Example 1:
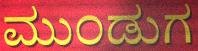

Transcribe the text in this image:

ಮುಂಡುಗ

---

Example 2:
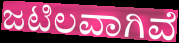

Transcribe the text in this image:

ಜಟಿಲವಾಗಿವೆ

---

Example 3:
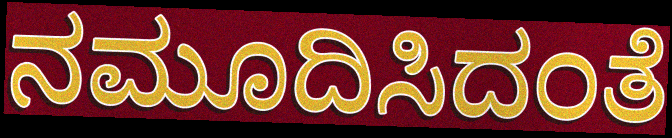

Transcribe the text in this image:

ನಮೂದಿಸಿದಂತೆ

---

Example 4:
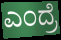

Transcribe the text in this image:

ಎಂದ್ರೆ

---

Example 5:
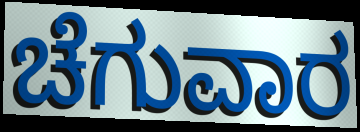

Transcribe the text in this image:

ಚೆಗುವಾರ